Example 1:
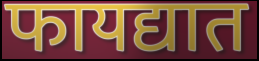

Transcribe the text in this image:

फायद्यात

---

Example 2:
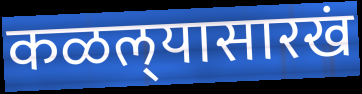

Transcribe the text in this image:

कळल्यासारखं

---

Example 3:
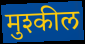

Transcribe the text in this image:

मुश्कील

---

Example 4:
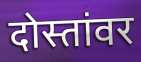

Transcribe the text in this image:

दोस्तांवर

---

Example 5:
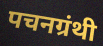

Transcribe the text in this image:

पचनग्रंथी